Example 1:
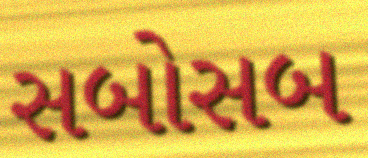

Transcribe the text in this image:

સબોસબ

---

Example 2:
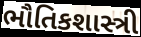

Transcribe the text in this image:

ભૌતિકશાસ્ત્રી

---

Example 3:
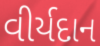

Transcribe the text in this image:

વીર્યદાન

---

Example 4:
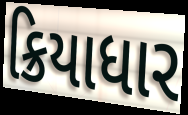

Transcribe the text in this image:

ક્રિયાધાર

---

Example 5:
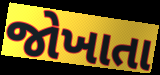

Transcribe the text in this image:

જોખાતા